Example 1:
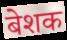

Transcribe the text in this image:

बेशक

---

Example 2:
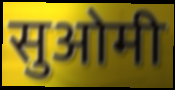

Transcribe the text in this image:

सुओमी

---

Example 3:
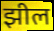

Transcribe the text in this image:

झील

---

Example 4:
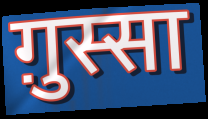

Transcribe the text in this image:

ग़ुस्सा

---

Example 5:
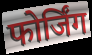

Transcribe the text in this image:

फोर्जिंग